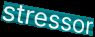
stressor